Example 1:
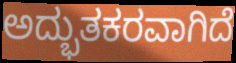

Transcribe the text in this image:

ಅದ್ಭುತಕರವಾಗಿದೆ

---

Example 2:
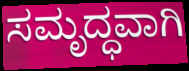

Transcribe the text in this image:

ಸಮೃದ್ಧವಾಗಿ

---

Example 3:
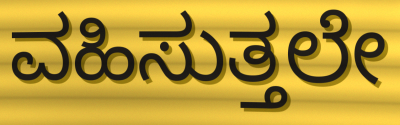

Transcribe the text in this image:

ವಹಿಸುತ್ತಲೇ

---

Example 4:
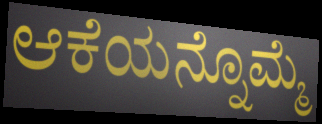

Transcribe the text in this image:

ಆಕೆಯನ್ನೊಮ್ಮೆ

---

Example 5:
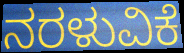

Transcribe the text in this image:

ನರಳುವಿಕೆ